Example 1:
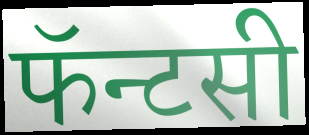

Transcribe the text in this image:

फॅन्टसी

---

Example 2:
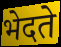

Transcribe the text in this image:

भेदते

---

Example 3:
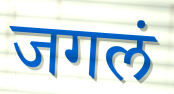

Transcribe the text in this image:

जगलं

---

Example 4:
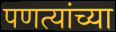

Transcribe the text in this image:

पणत्यांच्या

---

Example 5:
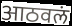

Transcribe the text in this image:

आठवलं